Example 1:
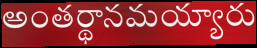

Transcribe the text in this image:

అంతర్థానమయ్యారు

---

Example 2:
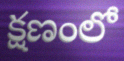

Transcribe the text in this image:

క్షణంలో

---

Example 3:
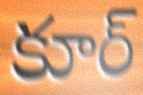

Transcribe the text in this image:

కూర్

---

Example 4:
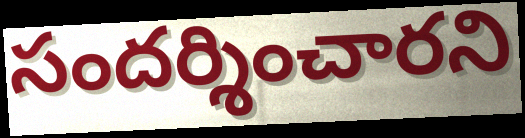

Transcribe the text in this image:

సందర్శించారని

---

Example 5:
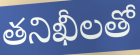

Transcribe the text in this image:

తనిఖీలతో